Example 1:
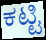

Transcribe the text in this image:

ಕಟ್ಟಿ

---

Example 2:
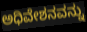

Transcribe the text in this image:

ಅಧಿವೇಶನವನ್ನು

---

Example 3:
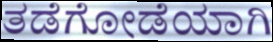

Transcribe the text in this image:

ತಡೆಗೋಡೆಯಾಗಿ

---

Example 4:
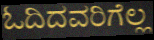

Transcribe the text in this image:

ಓದಿದವರಿಗೆಲ್ಲ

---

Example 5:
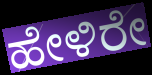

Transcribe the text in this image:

ಹೇಳಿರೇ